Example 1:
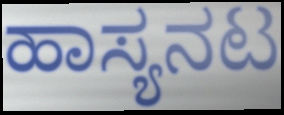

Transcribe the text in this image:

ಹಾಸ್ಯನಟ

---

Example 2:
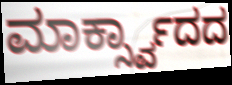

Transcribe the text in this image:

ಮಾರ್ಕ್ಸ್ವಾದದ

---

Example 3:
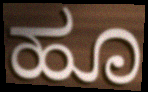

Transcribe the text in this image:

ಹೂ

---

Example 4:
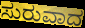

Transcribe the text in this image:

ಸುರುವಾದ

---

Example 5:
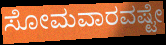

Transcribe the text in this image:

ಸೋಮವಾರವಷ್ಟೇ